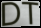
DT